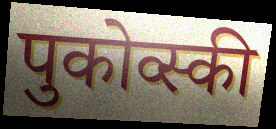
पुकोव्स्की